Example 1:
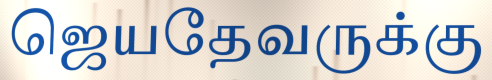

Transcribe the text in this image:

ஜெயதேவருக்கு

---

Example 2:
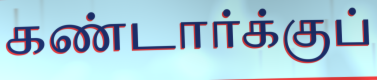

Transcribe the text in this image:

கண்டார்க்குப்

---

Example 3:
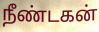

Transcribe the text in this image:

நீண்டகன்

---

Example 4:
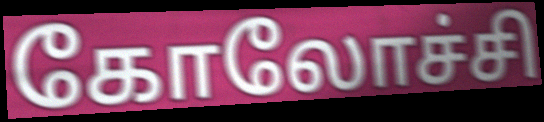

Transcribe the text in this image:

கோலோச்சி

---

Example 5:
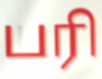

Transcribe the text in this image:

பரி